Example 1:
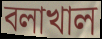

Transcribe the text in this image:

বলাখাল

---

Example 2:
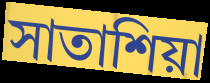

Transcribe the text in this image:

সাতাশিয়া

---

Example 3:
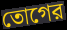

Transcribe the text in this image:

তোগের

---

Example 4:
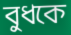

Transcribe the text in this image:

বুধকে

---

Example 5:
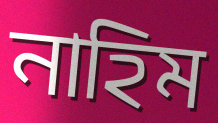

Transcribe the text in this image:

নাহিম